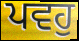
ਪਵਹੁ